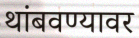
थांबवण्यावर